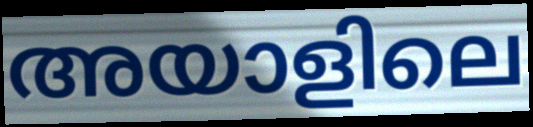
അയാളിലെ